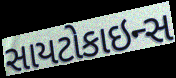
સાયટોકાઇન્સ